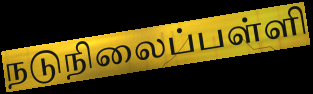
நடுநிலைப்பள்ளி